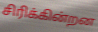
சிரிக்கின்றன